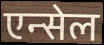
एन्सेल